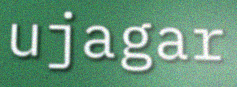
ujagar